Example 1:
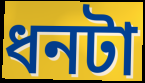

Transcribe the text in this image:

ধনটা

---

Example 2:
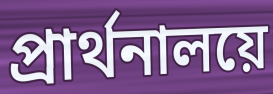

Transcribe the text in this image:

প্রার্থনালয়ে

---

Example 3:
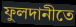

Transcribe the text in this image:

ফুলদানীতে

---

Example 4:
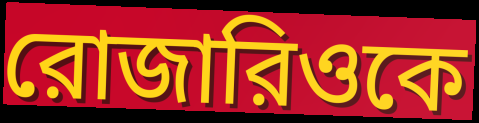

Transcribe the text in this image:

রোজারিওকে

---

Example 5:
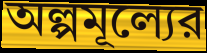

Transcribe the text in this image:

অল্পমূল্যের